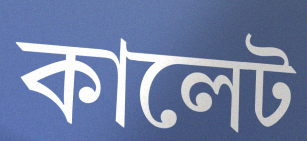
কালেট